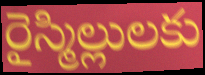
రైస్మిల్లులకు